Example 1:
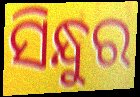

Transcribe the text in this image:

ସିନ୍ଧୁର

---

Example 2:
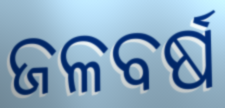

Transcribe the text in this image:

ଜଳବର୍ଷ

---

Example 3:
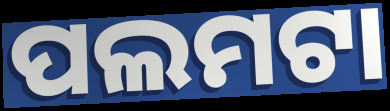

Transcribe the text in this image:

ପଲମଟା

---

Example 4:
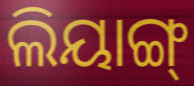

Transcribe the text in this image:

ଲିୟାଙ୍ଗ୍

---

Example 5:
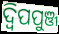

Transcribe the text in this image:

ଦ୍ଵିପପୁଞ୍ଜ